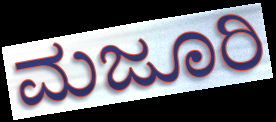
ಮಜೂರಿ